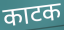
काटक